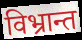
विभ्रान्त